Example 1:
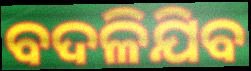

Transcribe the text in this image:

ବଦଳିଯିବ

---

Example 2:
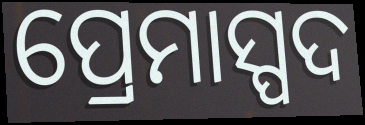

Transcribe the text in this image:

ପ୍ରେମାସ୍ପଦ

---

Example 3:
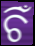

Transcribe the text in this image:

ଚିଁ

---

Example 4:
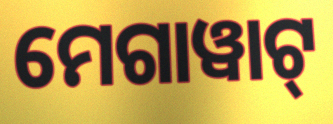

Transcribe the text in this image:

ମେଗାୱାଟ୍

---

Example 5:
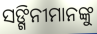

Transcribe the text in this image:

ସଙ୍ଗିନୀମାନଙ୍କୁ